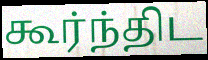
கூர்ந்திட